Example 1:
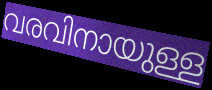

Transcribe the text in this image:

വരവിനായുള്ള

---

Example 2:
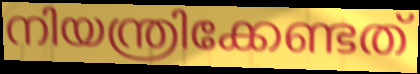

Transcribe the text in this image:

നിയന്ത്രിക്കേണ്ടത്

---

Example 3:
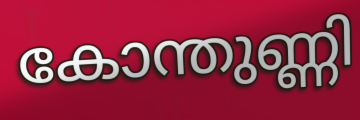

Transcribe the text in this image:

കോന്തുണ്ണി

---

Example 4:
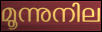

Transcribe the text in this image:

മൂന്നുനില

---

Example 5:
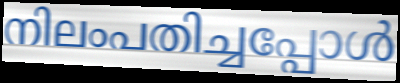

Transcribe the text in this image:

നിലംപതിച്ചപ്പോൾ